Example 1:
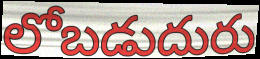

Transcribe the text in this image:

లోబడుదురు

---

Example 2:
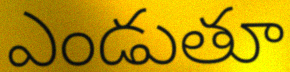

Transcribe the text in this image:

ఎండుతూ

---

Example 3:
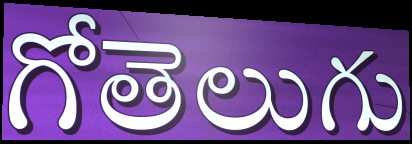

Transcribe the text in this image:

గోతెలుగు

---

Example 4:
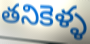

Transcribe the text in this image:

తనికెళ్ళ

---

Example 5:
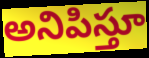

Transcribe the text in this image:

అనిపిస్తూ